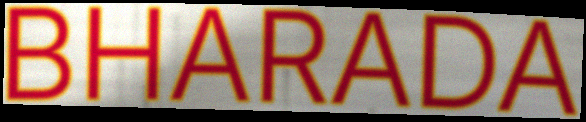
BHARADA